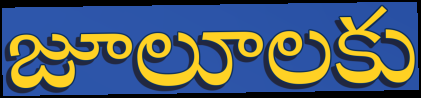
జూలూలకు